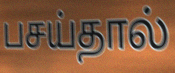
பசய்தால்